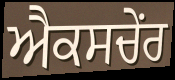
ਐਕਸਚੇਂਰ